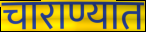
चाराण्यात